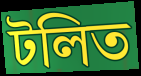
টলিত